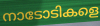
നാടോടികളെ